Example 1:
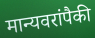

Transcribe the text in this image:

मान्यवरांपैकी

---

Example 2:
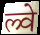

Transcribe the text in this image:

ल्वे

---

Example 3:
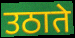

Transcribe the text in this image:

उठाते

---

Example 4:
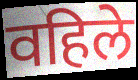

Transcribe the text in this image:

वहिले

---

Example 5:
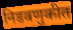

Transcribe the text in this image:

निडवणुकीत